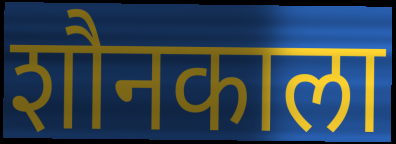
शौनकाला